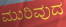
ಮುರಿವುದ